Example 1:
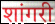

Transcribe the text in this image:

शांगरी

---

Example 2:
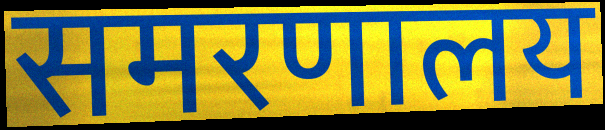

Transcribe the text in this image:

समरणालय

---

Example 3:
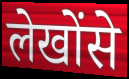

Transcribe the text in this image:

लेखोंसे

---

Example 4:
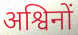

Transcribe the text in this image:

अश्विनों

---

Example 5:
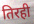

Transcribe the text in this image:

तिरही